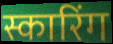
स्कारिंग